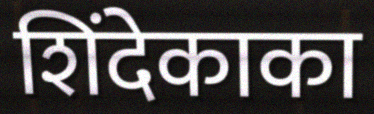
शिंदेकाका